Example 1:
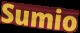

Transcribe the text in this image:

Sumio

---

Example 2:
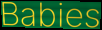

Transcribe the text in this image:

Babies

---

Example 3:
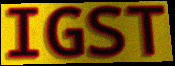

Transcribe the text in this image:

IGST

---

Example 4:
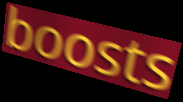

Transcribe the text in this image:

boosts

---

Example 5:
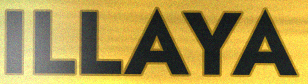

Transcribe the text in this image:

ILLAYA